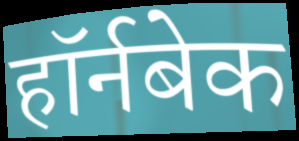
हॉर्नबेक